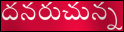
దనరుచున్న